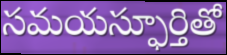
సమయస్ఫూర్తితో